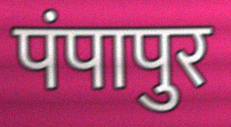
पंपापुर